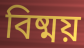
বিষ্ময়